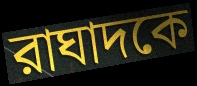
রাঘাদকে